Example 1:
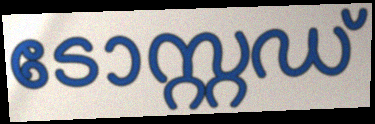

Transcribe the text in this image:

ടോസ്റ്റഡ്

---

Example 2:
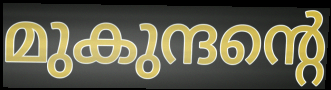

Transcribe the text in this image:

മുകുന്ദന്റെ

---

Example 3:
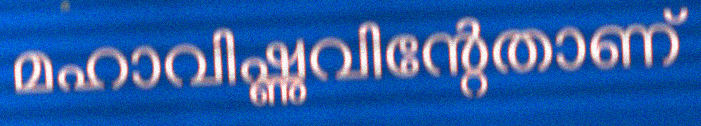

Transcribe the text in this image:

മഹാവിഷ്ണുവിന്റേതാണ്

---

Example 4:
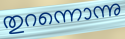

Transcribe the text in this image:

തുറന്നൊന്നു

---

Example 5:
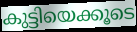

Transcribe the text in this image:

കുട്ടിയെക്കൂടെ